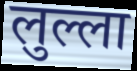
लुल्ला